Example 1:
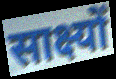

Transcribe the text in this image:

साक्ष्यों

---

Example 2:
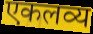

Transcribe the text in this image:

एकलव्य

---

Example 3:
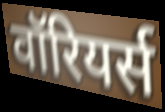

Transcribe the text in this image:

वॉरियर्स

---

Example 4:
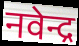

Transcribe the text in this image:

नवेन्द्र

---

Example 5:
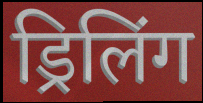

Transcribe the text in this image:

ड्रिलिंग